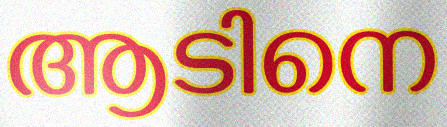
ആടിനെ